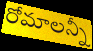
రోమాలన్నీ